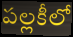
పల్లకీలో